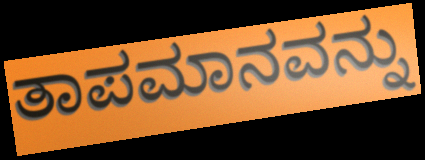
ತಾಪಮಾನವನ್ನು